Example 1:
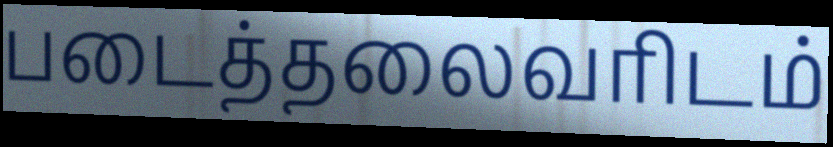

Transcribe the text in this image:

படைத்தலைவரிடம்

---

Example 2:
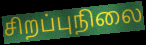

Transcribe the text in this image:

சிறப்புநிலை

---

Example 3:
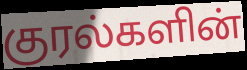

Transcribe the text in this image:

குரல்களின்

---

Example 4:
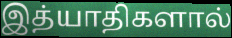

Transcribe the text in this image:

இத்யாதிகளால்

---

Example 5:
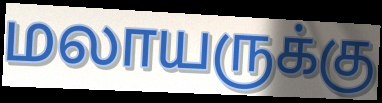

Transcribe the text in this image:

மலாயருக்கு